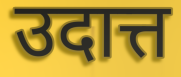
उदात्त